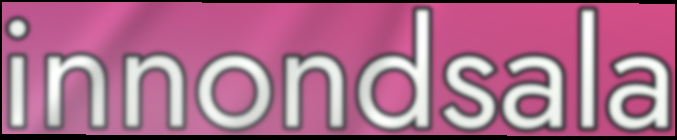
innondsala